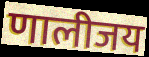
णालीजय